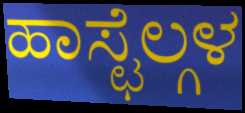
ಹಾಸ್ಟೆಲ್ಗಳ